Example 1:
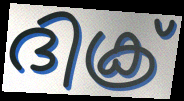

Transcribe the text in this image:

ദിക്ര്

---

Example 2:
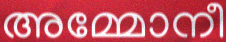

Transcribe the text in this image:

അമ്മോനീ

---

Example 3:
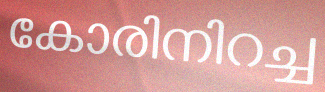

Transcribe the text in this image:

കോരിനിറച്ച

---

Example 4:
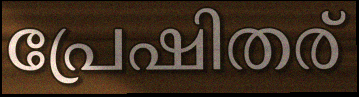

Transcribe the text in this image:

പ്രേഷിതര്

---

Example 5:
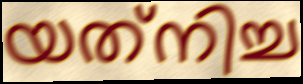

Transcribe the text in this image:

യത്‌നിച്ച